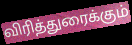
விரித்துரைக்கும்